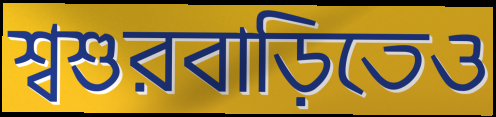
শ্বশুরবাড়িতেও